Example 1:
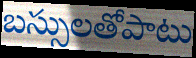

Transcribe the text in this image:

బస్సులతోపాటు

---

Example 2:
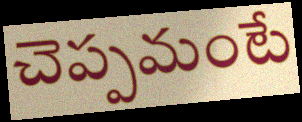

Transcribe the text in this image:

చెప్పమంటే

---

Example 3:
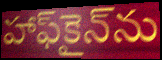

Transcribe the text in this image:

హాఫ్‌కైన్‌ను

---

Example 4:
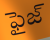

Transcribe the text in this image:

ఫైజ్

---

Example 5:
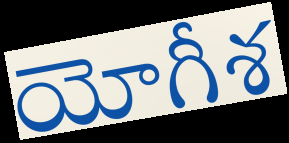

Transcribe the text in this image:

యోగీశ